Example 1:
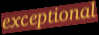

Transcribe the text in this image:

exceptional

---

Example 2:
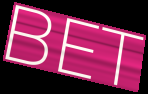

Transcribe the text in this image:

BET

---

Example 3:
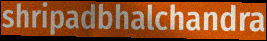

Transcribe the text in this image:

shripadbhalchandra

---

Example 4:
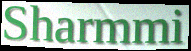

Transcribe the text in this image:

Sharmmi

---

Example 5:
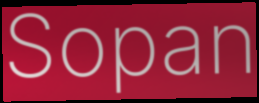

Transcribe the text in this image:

Sopan